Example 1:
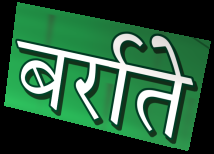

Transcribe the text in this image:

बर्राते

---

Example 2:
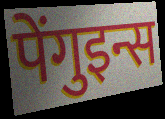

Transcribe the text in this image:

पेंगुइन्स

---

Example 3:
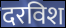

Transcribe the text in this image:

दरविश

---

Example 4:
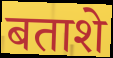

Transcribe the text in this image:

बताशे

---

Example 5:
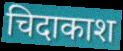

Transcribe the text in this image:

चिदाकाश